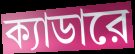
ক্যাডারে